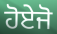
ਹੋਏਜੋ